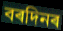
বৰদিনৰ